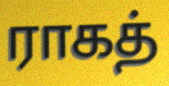
ராகத்